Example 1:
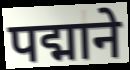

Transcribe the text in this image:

पद्माने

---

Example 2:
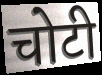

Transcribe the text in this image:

चोटी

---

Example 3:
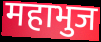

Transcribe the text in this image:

महाभुज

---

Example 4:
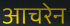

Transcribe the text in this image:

आचरेन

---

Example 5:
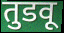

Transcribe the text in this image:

तुडवू